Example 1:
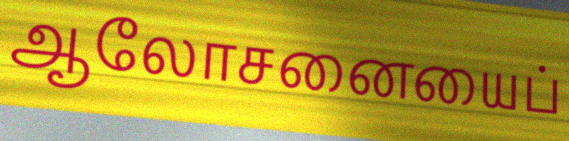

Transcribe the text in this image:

ஆலோசனையைப்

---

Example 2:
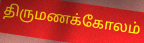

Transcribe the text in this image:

திருமணக்கோலம்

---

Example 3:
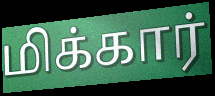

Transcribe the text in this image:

மிக்கார்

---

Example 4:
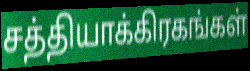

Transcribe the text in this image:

சத்தியாக்கிரகங்கள்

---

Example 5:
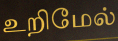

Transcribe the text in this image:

உறிமேல்